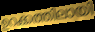
ഉറക്കത്തിലായി